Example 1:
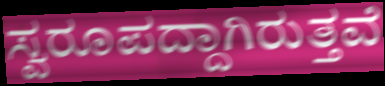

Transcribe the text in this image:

ಸ್ವರೂಪದ್ದಾಗಿರುತ್ತವೆ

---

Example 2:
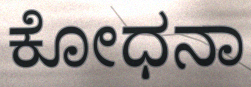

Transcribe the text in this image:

ಕೋಧನಾ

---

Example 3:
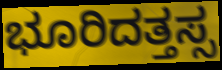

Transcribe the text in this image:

ಭೂರಿದತ್ತಸ್ಸ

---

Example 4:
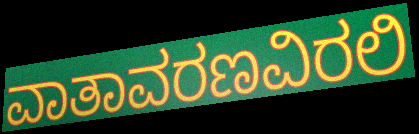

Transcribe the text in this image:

ವಾತಾವರಣವಿರಲಿ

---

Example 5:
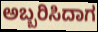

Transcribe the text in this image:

ಅಬ್ಬರಿಸಿದಾಗ